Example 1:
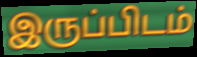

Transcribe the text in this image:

இருப்பிடம்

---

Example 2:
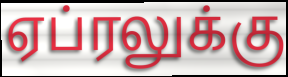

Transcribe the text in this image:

ஏப்ரலுக்கு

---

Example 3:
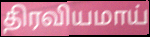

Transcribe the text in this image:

திரவியமாய்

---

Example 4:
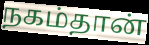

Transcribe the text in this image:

நகம்தான்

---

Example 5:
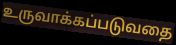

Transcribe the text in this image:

உருவாக்கப்படுவதை